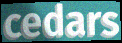
cedars